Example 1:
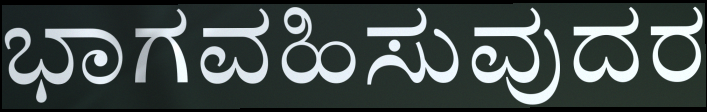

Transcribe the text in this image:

ಭಾಗವಹಿಸುವುದರ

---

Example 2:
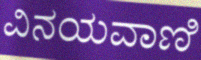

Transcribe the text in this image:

ವಿನಯವಾಣಿ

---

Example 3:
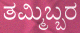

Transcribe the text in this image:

ತಮ್ಮಿಬ್ಬರ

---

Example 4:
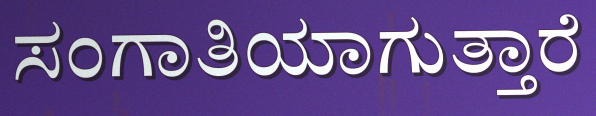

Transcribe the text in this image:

ಸಂಗಾತಿಯಾಗುತ್ತಾರೆ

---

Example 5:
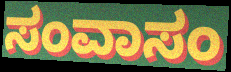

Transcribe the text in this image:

ಸಂವಾಸಂ